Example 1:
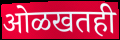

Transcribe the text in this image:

ओळखतही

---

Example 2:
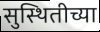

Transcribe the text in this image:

सुस्थितीच्या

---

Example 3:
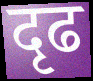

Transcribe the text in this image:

दृढ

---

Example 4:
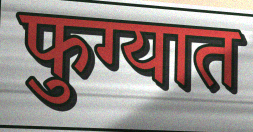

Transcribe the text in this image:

फुग्यात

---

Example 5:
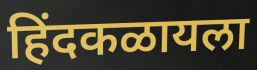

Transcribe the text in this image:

हिंदकळायला